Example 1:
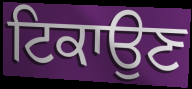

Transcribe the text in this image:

ਟਿਕਾਉਣ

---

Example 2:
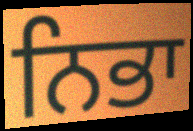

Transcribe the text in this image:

ਨਿਭਾ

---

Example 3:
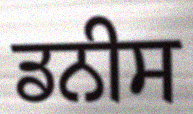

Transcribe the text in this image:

ਡਨੀਸ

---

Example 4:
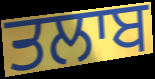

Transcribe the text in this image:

ਤਲਾਬ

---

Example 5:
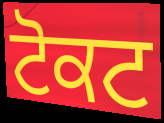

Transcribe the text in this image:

ਟੋਕਟ